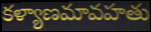
కళ్యాణమావహతు